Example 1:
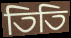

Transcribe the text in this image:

তিতি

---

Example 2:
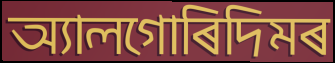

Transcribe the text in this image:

অ্যালগোৰিদিমৰ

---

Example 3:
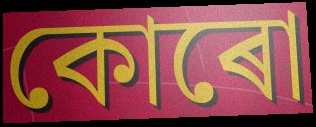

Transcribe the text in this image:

কোৰো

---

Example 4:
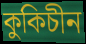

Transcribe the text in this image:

কুকিচীন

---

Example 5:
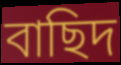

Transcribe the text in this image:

বাছিদ